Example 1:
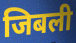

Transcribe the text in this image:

जिबली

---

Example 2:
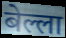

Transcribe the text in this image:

बेल्ला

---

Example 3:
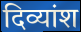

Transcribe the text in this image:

दिव्यांश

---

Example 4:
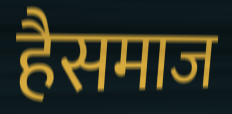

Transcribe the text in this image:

हैसमाज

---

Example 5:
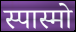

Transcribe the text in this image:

स्पास्मो